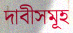
দাবীসমূহ